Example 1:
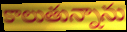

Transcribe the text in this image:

కాలుతున్నాను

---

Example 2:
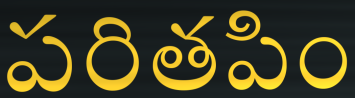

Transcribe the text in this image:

పరితపిం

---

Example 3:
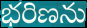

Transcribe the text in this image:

భరిణను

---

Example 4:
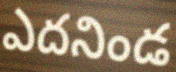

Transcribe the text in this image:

ఎదనిండ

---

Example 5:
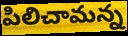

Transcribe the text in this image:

పిలిచామన్న